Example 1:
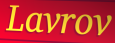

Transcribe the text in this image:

Lavrov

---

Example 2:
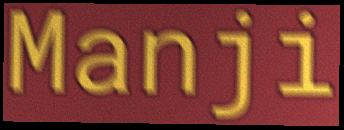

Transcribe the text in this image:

Manji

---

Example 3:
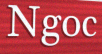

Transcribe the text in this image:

Ngoc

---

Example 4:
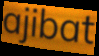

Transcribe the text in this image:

ajibat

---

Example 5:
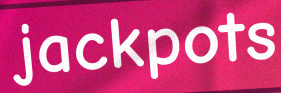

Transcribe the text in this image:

jackpots